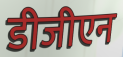
डीजीएन